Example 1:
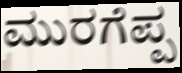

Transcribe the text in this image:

ಮುರಗೆಪ್ಪ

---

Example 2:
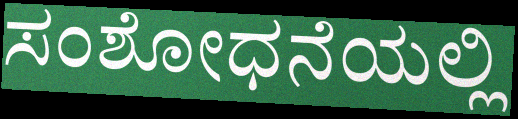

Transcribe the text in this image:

ಸಂಶೋಧನೆಯಲ್ಲಿ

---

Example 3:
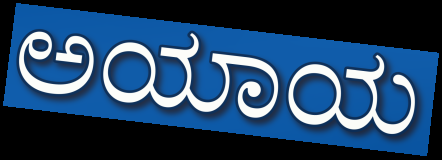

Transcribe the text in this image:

ಅಯಾಯ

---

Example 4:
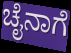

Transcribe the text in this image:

ಚೈನಾಗೆ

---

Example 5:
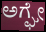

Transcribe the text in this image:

ಅಗ್ಘೇ